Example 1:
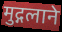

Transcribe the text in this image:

मुद्गलाने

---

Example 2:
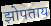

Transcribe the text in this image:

झोपताय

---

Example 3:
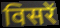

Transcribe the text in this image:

विसरें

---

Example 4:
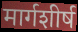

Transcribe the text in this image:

मार्गशीर्ष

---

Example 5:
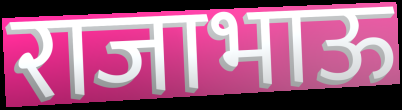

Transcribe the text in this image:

राजाभाऊ